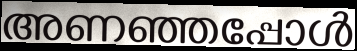
അണഞ്ഞപ്പോൾ